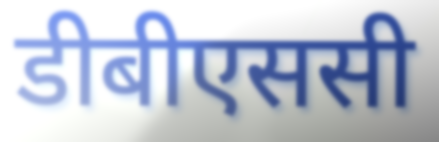
डीबीएससी